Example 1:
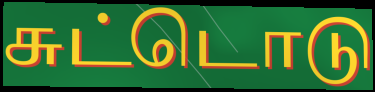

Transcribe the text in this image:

சுட்டொடு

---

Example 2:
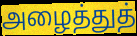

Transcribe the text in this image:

அழைத்துத்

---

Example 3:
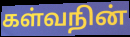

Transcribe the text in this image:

கள்வநின்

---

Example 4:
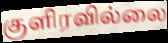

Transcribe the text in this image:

குளிரவில்லை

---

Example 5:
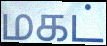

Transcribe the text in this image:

மகட்